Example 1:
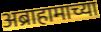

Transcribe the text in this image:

अब्राहामाच्या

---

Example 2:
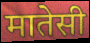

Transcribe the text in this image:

मातेसी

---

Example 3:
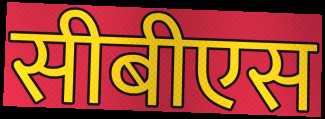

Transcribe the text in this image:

सीबीएस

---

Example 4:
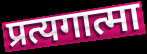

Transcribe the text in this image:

प्रत्यगात्मा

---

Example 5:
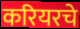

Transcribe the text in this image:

करियरचे